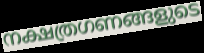
നക്ഷത്രഗണങ്ങളുടെ